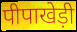
पीपाखेड़ी